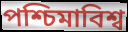
পশ্চিমাবিশ্ব